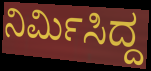
ನಿರ್ಮಿಸಿದ್ದ